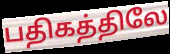
பதிகத்திலே